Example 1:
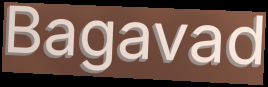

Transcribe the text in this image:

Bagavad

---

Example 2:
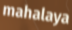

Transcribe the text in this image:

mahalaya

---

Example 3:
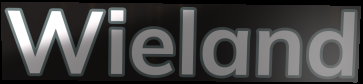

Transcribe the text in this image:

Wieland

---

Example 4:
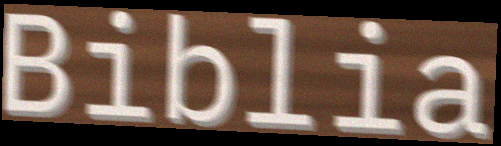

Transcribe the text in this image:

Biblia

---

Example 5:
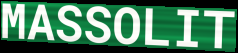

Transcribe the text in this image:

MASSOLIT